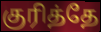
குரித்தே